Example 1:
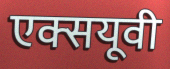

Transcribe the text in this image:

एक्सयूवी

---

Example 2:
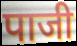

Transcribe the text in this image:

पाजी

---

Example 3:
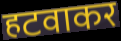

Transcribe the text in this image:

हटवाकर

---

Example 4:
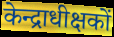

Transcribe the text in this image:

केन्द्राधीक्षकों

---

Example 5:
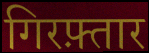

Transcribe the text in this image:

गिरफ़्तार